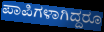
ಪಾಪಿಗಳಾಗಿದ್ದರೂ